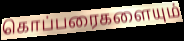
கொப்பரைகளையும்